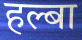
हल्बा